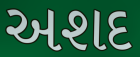
અશદ